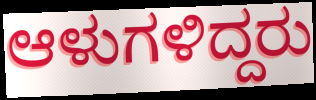
ಆಳುಗಳಿದ್ದರು